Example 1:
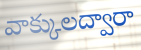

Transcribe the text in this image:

వాక్కులద్వారా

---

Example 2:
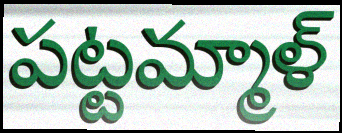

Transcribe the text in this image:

పట్టమ్మాళ్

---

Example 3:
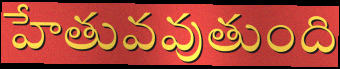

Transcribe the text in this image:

హేతువవుతుంది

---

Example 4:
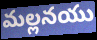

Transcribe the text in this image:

మల్లనయు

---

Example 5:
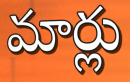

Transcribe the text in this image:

మార్లు